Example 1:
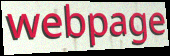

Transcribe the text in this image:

webpage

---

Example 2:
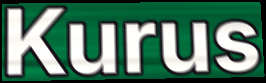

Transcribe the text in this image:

Kurus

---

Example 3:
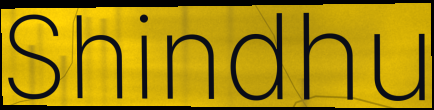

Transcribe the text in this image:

Shindhu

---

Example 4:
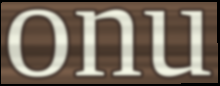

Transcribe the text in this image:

onu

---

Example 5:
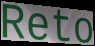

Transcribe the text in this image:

Reto